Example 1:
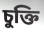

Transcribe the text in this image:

চুক্তি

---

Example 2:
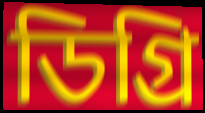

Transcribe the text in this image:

ডিগ্ৰি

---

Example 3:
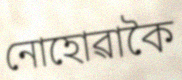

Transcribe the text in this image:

নোহোৱাকৈ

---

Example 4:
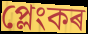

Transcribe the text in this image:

প্লেংকৰ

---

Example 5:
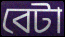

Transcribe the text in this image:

বেটা